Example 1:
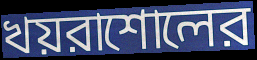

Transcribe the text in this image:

খয়রাশোলের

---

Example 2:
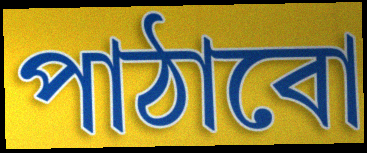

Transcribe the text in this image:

পাঠাবো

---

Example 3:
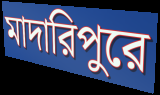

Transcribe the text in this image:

মাদারিপুরে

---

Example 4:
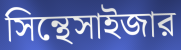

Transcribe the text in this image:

সিন্থেসাইজার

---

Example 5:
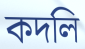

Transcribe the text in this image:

কদলি